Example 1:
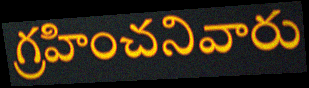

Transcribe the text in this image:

గ్రహించనివారు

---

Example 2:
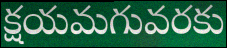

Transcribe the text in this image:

క్షయమగువరకు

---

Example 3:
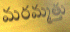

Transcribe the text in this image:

మరమ్మత్తు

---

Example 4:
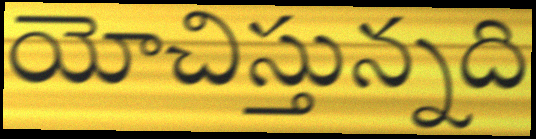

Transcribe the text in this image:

యోచిస్తున్నది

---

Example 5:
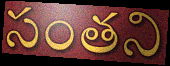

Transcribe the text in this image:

సంతని